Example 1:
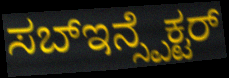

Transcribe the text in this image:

ಸಬ್ಇನ್ಸ್ಪೆಕ್ಟರ್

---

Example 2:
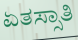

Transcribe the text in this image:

ಏತಸ್ಸಾತಿ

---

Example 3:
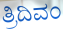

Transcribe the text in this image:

ತ್ರಿದಿವಂ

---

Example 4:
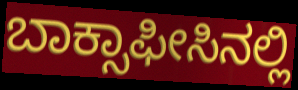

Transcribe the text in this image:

ಬಾಕ್ಸಾಫೀಸಿನಲ್ಲಿ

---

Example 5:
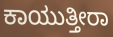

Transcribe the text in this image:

ಕಾಯುತ್ತೀರಾ